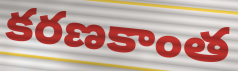
కరణకాంత